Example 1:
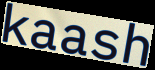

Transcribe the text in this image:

kaash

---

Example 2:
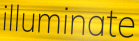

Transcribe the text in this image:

illuminate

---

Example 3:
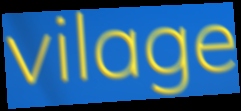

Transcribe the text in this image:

vilage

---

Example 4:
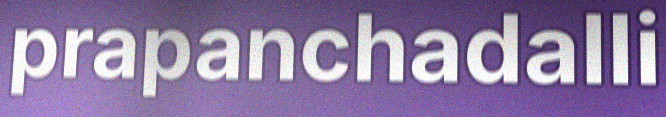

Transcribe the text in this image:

prapanchadalli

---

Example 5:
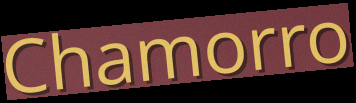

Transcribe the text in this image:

Chamorro